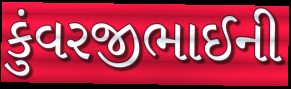
કુંવરજીભાઈની